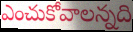
ఎంచుకోవాలన్నది